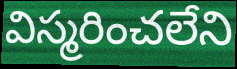
విస్మరించలేని